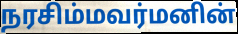
நரசிம்மவர்மனின்